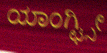
ಯಾಂಗ್ಟ್ಸೀ